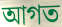
আগত